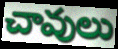
చావులు